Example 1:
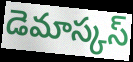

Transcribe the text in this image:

డెమాస్కస్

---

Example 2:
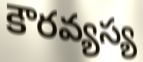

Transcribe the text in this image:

కౌరవ్యస్య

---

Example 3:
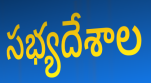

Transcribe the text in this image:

సభ్యదేశాల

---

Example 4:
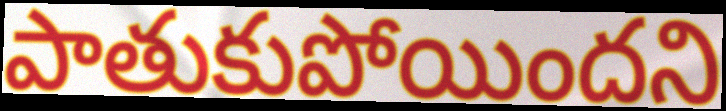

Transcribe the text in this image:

పాతుకుపోయిందని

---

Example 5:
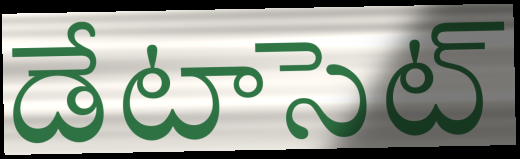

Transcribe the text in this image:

డేటాసెట్